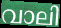
വാലി